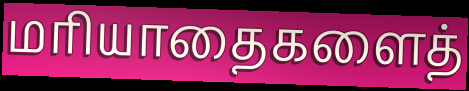
மரியாதைகளைத்